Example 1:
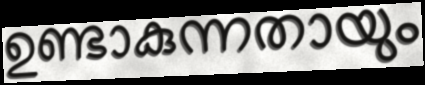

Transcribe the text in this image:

ഉണ്ടാകുന്നതായും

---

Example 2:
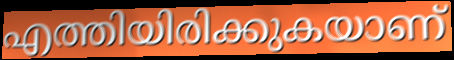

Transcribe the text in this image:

എത്തിയിരിക്കുകയാണ്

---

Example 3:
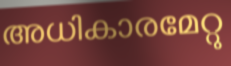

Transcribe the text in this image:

അധികാരമേറ്റു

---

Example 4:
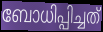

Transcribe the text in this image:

ബോധിപ്പിച്ചത്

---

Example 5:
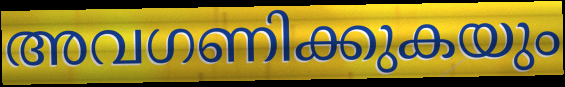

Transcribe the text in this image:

അവഗണിക്കുകയും